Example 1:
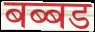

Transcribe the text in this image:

बब्बड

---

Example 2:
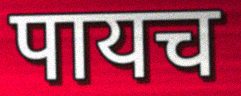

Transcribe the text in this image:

पायच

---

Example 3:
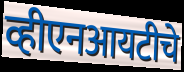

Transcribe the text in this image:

व्हीएनआयटीचे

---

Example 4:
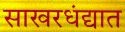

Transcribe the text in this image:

साखरधंद्यात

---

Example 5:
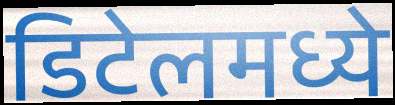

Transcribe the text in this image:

डिटेलमध्ये